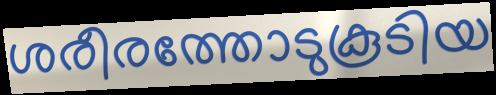
ശരീരത്തോടുകൂടിയ